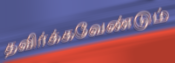
தவிர்க்கவேண்டும்